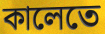
কালেতে